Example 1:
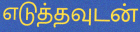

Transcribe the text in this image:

எடுத்தவுடன்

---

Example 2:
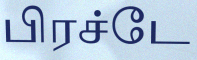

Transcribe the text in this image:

பிரச்டே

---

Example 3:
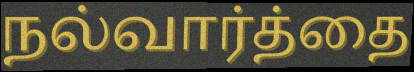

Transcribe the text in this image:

நல்வார்த்தை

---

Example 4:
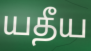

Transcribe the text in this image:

யதீய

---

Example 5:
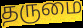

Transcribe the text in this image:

தருமை